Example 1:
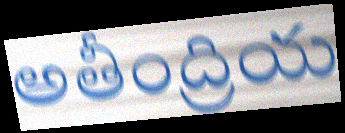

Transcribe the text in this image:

అతీంద్రియ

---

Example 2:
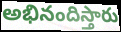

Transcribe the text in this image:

అభినందిస్తారు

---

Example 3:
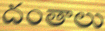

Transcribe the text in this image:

దంతాలు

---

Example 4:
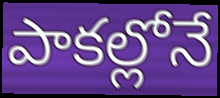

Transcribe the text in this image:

పాకల్లోనే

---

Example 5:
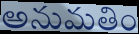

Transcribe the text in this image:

అనుమతిం